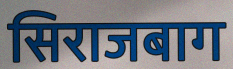
सिराजबाग